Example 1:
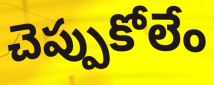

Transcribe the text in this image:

చెప్పుకోలేం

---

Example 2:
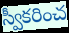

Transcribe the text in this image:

స్వీకరించ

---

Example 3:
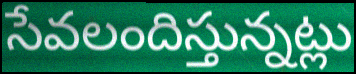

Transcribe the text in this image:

సేవలందిస్తున్నట్లు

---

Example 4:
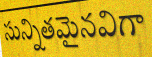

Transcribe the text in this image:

సున్నితమైనవిగా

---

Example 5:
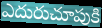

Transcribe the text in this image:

ఎదురుచూపుకి